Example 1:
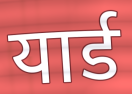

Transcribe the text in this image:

यार्ड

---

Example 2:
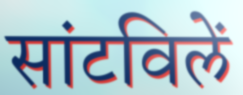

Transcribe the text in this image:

सांटविलें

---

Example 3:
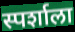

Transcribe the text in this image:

स्पर्शाला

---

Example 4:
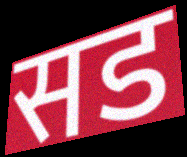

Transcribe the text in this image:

सड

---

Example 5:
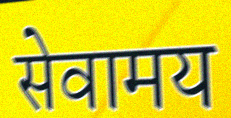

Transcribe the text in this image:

सेवामय